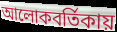
আলোকবর্তিকায়